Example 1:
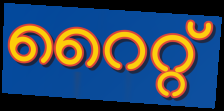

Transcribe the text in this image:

റൈറ്റ്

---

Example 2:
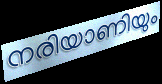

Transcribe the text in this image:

നരിയാണിയും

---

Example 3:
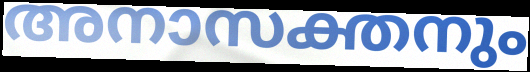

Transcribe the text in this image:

അനാസക്തനും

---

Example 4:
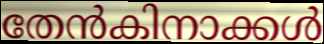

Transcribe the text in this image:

തേൻകിനാക്കൾ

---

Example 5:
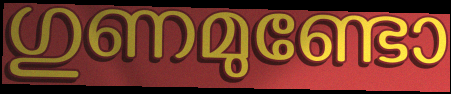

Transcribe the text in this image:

ഗുണമുണ്ടോ